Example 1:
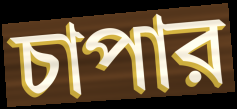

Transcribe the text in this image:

চাপার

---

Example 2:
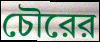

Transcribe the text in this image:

চৌরের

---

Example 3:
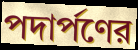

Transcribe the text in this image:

পদার্পণের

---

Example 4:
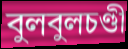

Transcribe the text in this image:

বুলবুলচণ্ডী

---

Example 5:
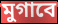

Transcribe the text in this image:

মুগাবে